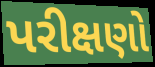
પરીક્ષણો